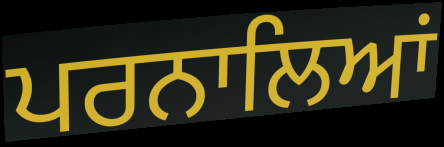
ਪਰਨਾਲਿਆਂ